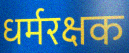
धर्मरक्षक